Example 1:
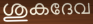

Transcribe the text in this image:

ശുകദേവ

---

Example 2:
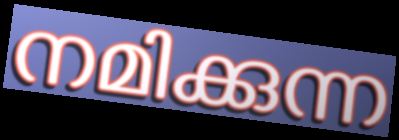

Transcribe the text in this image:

നമിക്കുന്ന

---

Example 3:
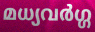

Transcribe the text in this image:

മധ്യവർഗ്ഗ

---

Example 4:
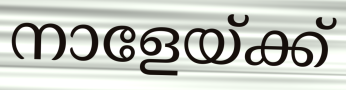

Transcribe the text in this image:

നാളേയ്ക്ക്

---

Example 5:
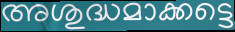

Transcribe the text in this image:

അശുദ്ധമാക്കട്ടെ